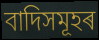
বাদিসমূহৰ